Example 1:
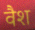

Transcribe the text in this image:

वैश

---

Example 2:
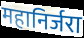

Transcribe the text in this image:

महानिर्जरा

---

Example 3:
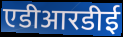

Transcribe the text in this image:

एडीआरडीई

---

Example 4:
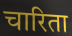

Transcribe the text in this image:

चारिता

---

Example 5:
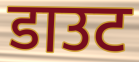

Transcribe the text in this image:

डाउट